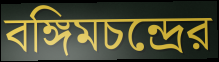
বঙ্গিমচন্দ্রের